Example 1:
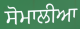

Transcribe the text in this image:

ਸੋਮਾਲੀਆ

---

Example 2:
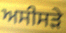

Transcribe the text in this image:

ਅਸੀਸੜੇ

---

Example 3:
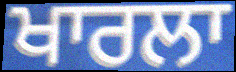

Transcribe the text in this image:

ਖਾਰਲਾ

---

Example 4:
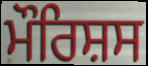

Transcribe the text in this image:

ਮੌਰਿਸ਼ਸ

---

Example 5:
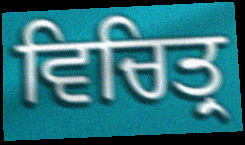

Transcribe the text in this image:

ਵਿਚਿਤ੍ਰ